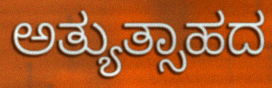
ಅತ್ಯುತ್ಸಾಹದ